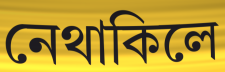
নেথাকিলে